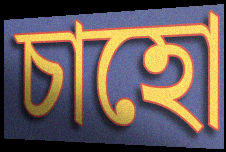
চাহো